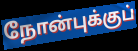
நோன்புக்குப்